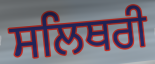
ਸਲਿਥਰੀ